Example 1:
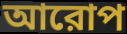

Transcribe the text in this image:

আরোপ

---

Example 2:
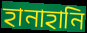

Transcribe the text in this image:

হানাহানি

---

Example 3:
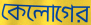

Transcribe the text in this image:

কেলোগের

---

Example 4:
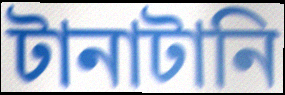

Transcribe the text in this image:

টানাটানি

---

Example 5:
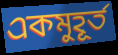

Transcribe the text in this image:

একমুহূর্ত